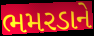
ભમરડાને